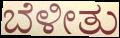
ಬೆಳೀತು